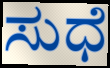
ಸುಧೆ